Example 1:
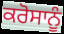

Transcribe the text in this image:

ਕਰੋਸਾਨੂੰ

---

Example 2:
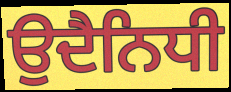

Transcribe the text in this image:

ਉਦੈਨਿਧੀ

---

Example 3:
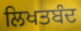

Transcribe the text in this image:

ਲਿਖਤਬੰਦ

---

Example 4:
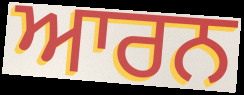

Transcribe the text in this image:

ਆਰਨ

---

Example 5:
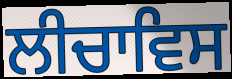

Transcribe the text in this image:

ਲੀਚਾਵਿਸ